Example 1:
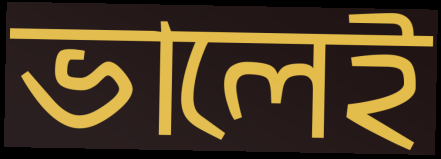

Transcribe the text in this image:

ভালেই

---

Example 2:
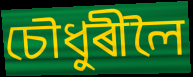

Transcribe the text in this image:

চৌধুৰীলৈ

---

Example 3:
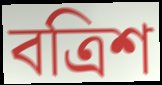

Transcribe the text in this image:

বত্ৰিশ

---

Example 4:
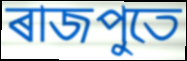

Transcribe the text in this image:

ৰাজপুতে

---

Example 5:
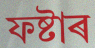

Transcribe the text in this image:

ফষ্টাৰ